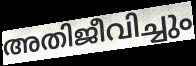
അതിജീവിച്ചും